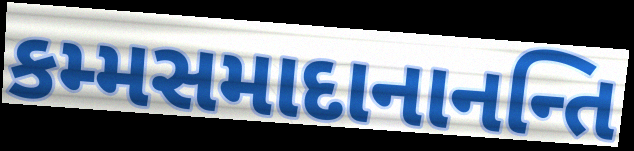
કમ્મસમાદાનાનન્તિ